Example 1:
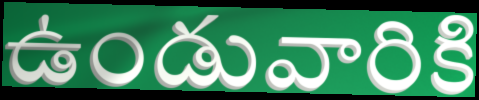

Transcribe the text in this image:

ఉండువారికి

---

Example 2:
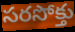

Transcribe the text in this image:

సరసోక్తు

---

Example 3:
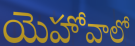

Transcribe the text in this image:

యెహోవాలో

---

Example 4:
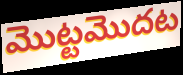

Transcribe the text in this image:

మొట్టమొదట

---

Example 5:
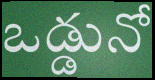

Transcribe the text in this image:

ఒడ్డునో